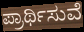
ಪ್ರಾರ್ಥಿಸುವೆ